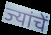
ज्यांचें